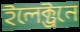
ইলেক্ট্ৰনে